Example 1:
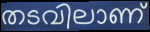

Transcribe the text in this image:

തടവിലാണ്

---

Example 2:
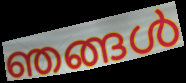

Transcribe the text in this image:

ഞങ്ങൾ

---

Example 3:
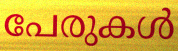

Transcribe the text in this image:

പേരുകൾ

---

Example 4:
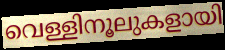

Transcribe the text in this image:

വെള്ളിനൂലുകളായി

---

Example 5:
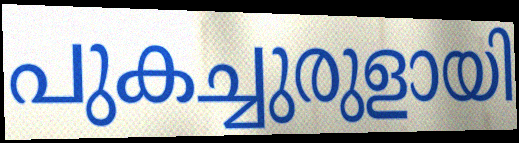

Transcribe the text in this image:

പുകച്ചുരുളായി